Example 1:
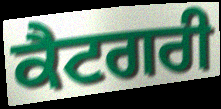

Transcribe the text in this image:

ਕੈਟਗਰੀ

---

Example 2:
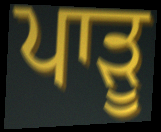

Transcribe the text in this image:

ਪਾੜੂ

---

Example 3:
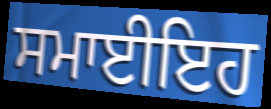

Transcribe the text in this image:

ਸਮਾਈਇਹ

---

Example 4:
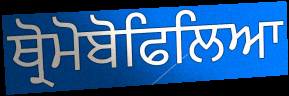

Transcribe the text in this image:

ਥ੍ਰੋਮੋਬੋਫਿਲਿਆ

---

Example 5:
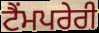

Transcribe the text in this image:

ਟੈਂਮਪਰੇਰੀ